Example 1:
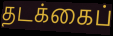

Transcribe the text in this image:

தடக்கைப்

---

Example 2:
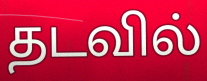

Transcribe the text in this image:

தடவில்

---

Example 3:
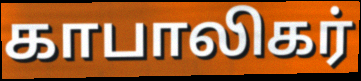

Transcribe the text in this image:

காபாலிகர்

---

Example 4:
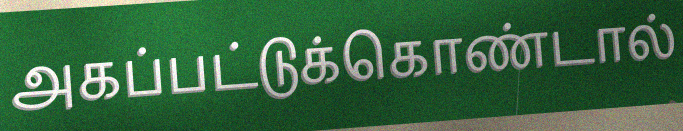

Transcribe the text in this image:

அகப்பட்டுக்கொண்டால்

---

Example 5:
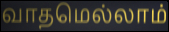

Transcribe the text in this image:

வாதமெல்லாம்